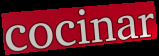
cocinar